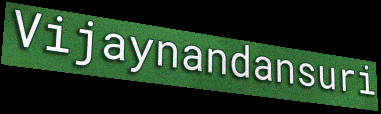
Vijaynandansuri